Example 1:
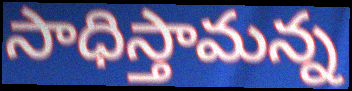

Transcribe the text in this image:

సాధిస్తామన్న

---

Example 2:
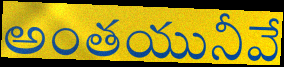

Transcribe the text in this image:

అంతయునీవే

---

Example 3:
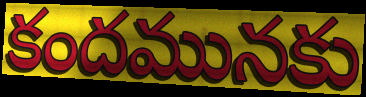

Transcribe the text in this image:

కందమునకు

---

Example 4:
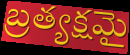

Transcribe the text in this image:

బ్రత్యక్షమై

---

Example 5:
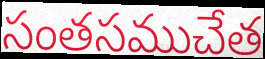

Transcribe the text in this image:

సంతసముచేత